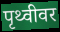
पृथ्वीवर